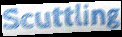
Scuttling